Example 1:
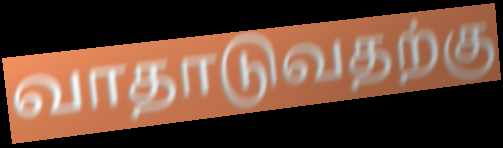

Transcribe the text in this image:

வாதாடுவதற்கு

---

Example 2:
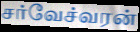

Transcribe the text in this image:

சர்வேச்வரன்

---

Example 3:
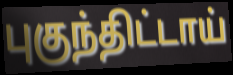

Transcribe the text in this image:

புகுந்திட்டாய்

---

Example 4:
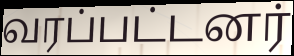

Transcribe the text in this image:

வரப்பட்டனர்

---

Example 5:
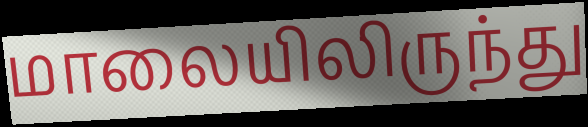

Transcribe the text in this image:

மாலையிலிருந்து